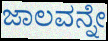
ಜಾಲವನ್ನೇ